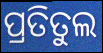
ପ୍ରତିତୁଲ